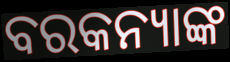
ବରକନ୍ୟାଙ୍କ